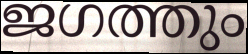
ജഗത്തും